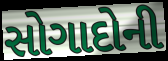
સોગાદોની